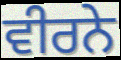
ਵੀਰਨੇ